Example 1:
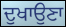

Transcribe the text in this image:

ਦੁਖਾਉਣਾ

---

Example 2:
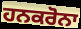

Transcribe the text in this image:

ਹਨਕਰੋਨਾ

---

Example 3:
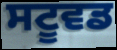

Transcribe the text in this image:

ਸਟੂਵਡ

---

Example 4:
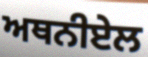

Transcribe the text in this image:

ਅਥਨੀਏਲ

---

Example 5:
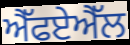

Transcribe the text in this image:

ਐੱਫਏਐੱਲ